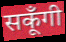
सकूँगी